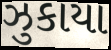
ઝુકાયા